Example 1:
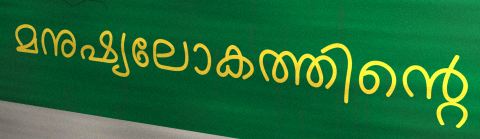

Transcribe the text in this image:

മനുഷ്യലോകത്തിന്റെ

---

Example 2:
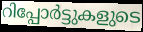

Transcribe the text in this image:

റിപ്പോർട്ടുകളുടെ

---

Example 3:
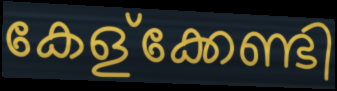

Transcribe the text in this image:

കേള്ക്കേണ്ടി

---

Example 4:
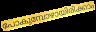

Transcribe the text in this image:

പോകുമ്പോഴായിരിക്കാം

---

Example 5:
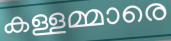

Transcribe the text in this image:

കള്ളമ്മാരെ